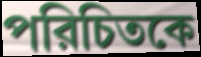
পরিচিতকে